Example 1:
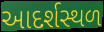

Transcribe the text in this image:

આદર્શસ્થળ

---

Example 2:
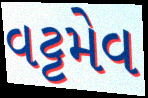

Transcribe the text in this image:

વટ્ટમેવ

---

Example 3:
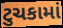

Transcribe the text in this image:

ટુચકામાં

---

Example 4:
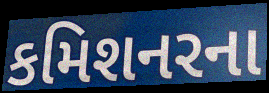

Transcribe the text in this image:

કમિશનરના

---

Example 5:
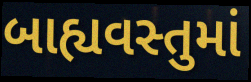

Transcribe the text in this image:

બાહ્યવસ્તુમાં